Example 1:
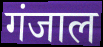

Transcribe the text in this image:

गंजाल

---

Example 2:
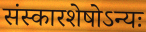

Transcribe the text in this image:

संस्कारशेषोऽन्यः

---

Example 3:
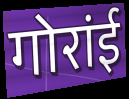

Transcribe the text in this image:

गोरांई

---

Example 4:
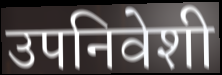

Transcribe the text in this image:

उपनिवेशी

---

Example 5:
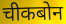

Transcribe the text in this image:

चीकबोन